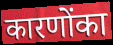
कारणोंका